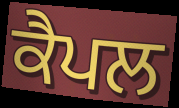
ਕੈਪਲ